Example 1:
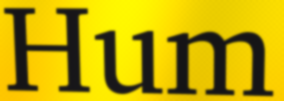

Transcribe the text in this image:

Hum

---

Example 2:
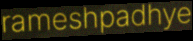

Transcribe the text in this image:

rameshpadhye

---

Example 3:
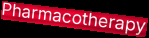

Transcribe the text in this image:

Pharmacotherapy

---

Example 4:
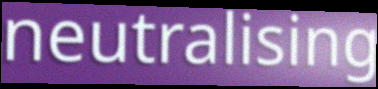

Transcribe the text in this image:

neutralising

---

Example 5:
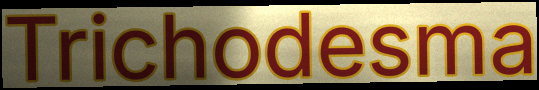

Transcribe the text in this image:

Trichodesma